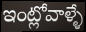
ఇంట్లోవాళ్ళే